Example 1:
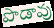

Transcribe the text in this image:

పొడావు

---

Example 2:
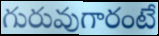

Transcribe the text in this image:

గురువుగారంటే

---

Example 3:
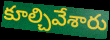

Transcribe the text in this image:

కూల్చివేశారు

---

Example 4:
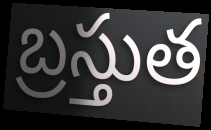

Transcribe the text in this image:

బ్రస్తుత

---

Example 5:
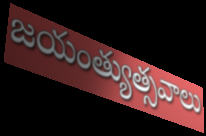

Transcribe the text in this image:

జయంత్యుత్సవాలు